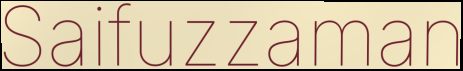
Saifuzzaman